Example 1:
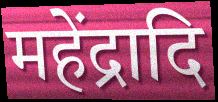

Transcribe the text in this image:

महेंद्रादि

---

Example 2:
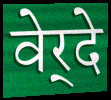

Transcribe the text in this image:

वेर्दे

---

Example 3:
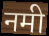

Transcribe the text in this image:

नमी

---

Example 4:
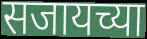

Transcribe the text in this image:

सजायच्या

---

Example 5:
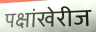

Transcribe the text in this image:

पक्षांखेरीज